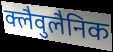
क्लैवुलैनिक